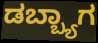
ಡಬ್ಬ್ಯಾಗ